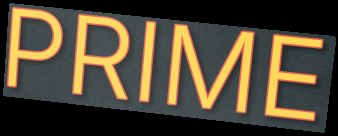
PRIME